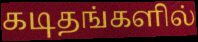
கடிதங்களில்